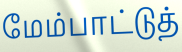
மேம்பாட்டுத்